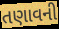
તણાવની